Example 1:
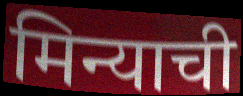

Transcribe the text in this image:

मिन्याची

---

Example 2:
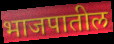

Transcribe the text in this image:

भाजपातील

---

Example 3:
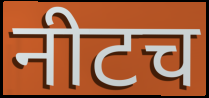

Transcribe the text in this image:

नीटच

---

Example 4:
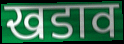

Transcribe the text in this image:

खडाव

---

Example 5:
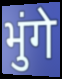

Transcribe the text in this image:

भुंगे